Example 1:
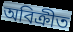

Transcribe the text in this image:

অবিক্রীত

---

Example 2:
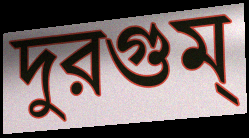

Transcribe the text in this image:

দুরগুম্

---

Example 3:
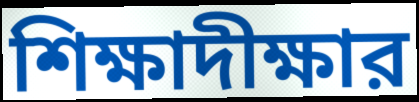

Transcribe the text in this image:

শিক্ষাদীক্ষার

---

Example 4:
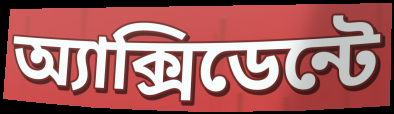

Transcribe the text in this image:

অ্যাক্সিডেন্টে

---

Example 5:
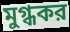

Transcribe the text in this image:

মুগ্ধকর